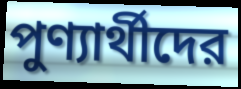
পুণ্যার্থীদের